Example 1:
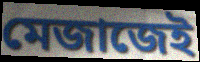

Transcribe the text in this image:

মেজাজেই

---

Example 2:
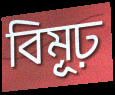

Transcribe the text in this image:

বিমূঢ়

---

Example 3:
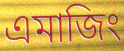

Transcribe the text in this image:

এমাজিং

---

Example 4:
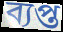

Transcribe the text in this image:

ব্যপ্ত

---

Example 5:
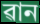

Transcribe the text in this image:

ৱান